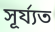
সূৰ্য্যত